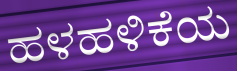
ಹಳಹಳಿಕೆಯ